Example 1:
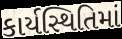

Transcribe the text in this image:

કાર્યસ્થિતિમાં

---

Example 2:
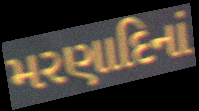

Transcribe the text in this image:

મરણાદિનાં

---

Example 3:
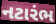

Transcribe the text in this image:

નટારંભ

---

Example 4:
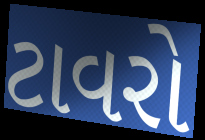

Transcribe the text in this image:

ટાવરો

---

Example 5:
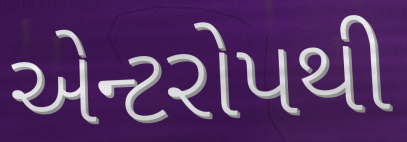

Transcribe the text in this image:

એન્ટરોપથી